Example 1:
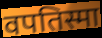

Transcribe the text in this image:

वपतिस्मा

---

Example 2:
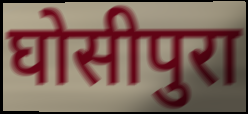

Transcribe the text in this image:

घोसीपुरा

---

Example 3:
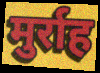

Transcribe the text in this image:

मुर्राह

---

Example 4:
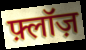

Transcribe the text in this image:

फ़्लॉज़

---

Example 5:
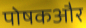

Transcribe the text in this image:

पोषकऔर